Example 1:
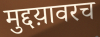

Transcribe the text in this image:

मुद्दय़ावरच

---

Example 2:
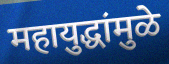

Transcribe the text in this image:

महायुद्धांमुळे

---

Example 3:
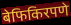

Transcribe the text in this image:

बेफिकिरपणे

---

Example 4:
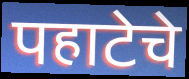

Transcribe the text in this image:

पहाटेचे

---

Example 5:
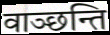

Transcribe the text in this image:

वाञ्छन्ति